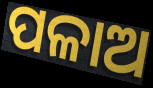
ପଳାଅ